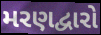
મરણદ્વારો